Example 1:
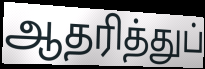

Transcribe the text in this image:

ஆதரித்துப்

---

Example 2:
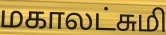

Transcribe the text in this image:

மகாலட்சுமி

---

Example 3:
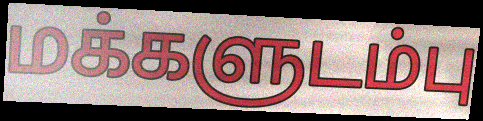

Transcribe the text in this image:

மக்களுடம்பு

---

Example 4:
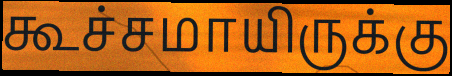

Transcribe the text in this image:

கூச்சமாயிருக்கு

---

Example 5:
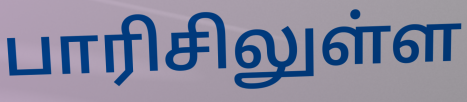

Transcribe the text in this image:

பாரிசிலுள்ள